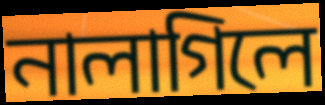
নালাগিলে